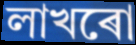
লাখৰো